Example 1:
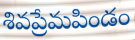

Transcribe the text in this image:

శివప్రేమపిండం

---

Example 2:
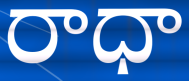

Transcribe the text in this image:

రాధా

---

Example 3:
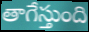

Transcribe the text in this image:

తాగేస్తుంది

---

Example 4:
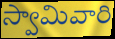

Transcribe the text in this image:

స్వామివారి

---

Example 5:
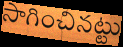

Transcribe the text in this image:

సాగించినట్టు